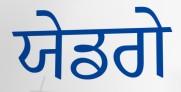
ਯੇਡਗੇ